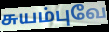
சுயம்புவே